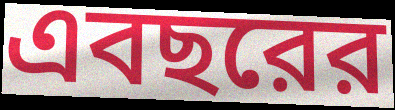
এবছরের